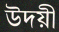
উদয়ী